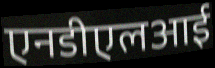
एनडीएलआई